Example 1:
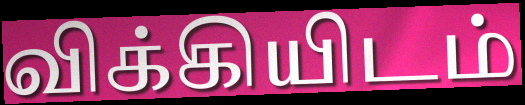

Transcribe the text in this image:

விக்கியிடம்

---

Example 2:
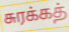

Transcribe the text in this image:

சுரக்கத்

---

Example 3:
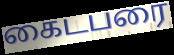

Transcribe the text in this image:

கைடபரை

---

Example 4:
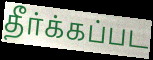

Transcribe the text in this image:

தீர்க்கப்பட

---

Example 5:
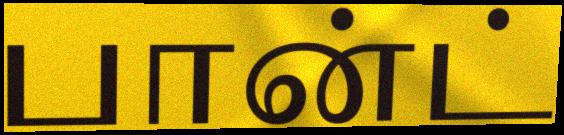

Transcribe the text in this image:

பான்ட்